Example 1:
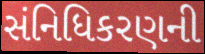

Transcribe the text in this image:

સંનિધિકરણની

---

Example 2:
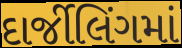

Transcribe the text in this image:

દાર્જીલિંગમાં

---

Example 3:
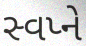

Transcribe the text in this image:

સ્વપ્ને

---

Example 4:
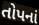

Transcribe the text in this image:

તોપનાં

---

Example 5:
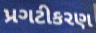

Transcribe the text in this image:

પ્રગટીકરણ